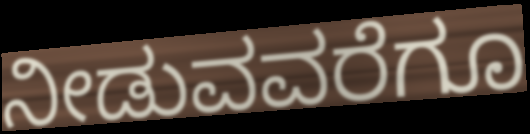
ನೀಡುವವರೆಗೂ